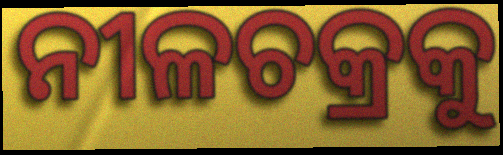
ନୀଳଚକ୍ରକୁ